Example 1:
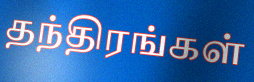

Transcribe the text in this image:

தந்திரங்கள்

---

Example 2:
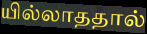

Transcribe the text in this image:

யில்லாததால்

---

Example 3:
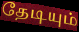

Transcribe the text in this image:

தேடியும்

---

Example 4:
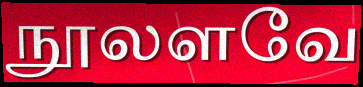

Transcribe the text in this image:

நூலளவே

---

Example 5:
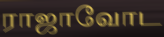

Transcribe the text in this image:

ராஜாவோட